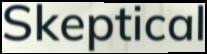
Skeptical